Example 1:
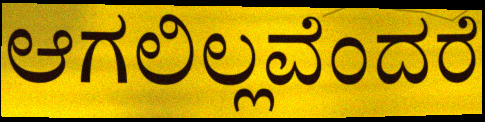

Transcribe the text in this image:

ಆಗಲಿಲ್ಲವೆಂದರೆ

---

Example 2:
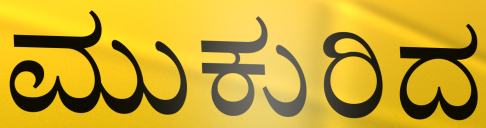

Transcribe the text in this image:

ಮುಕುರಿದ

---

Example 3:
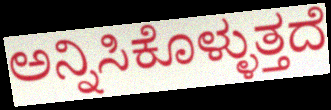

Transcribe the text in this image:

ಅನ್ನಿಸಿಕೊಳ್ಳುತ್ತದೆ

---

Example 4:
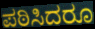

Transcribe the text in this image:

ಪಠಿಸಿದರೂ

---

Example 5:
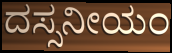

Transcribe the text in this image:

ದಸ್ಸನೀಯಂ